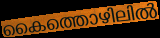
കൈത്തൊഴിലിൽ